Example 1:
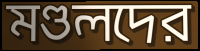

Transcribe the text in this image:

মণ্ডলদের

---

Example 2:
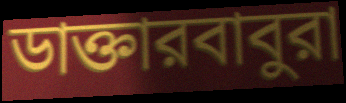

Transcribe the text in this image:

ডাক্তারবাবুরা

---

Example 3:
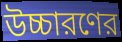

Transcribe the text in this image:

উচ্চারণের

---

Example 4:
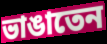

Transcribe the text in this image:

ভাঙাতেন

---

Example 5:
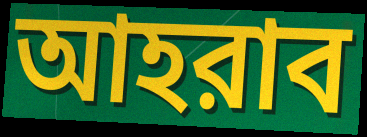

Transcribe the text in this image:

আহরাব